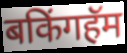
बकिंगहॅम